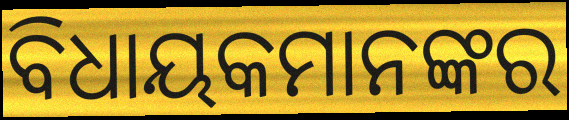
ବିଧାୟକମାନଙ୍କର